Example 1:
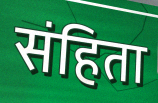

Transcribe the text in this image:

संहिता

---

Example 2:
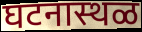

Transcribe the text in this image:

घटनास्थळ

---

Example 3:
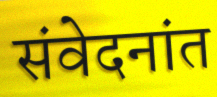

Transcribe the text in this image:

संवेदनांत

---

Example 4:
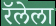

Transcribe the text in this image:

रॅलेला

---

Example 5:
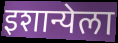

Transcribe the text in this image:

इशान्येला